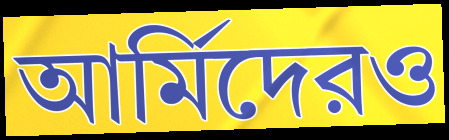
আর্মিদেরও